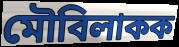
মৌবিলাকক